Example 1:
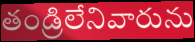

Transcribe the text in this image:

తండ్రిలేనివారును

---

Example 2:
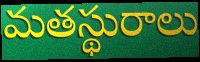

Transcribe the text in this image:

మతస్థురాలు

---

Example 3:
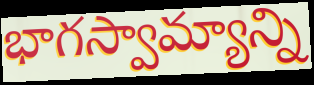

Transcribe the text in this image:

భాగస్వామ్యాన్ని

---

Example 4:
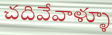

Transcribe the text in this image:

చదివేవాళ్ళూ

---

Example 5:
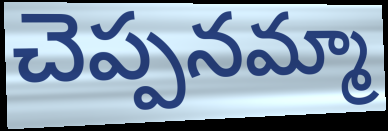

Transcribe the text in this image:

చెప్పనమ్మా